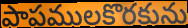
పాపములకొరకును